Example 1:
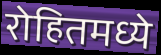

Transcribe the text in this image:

रोहितमध्ये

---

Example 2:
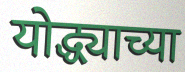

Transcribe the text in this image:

योद्ध्याच्या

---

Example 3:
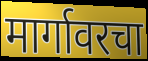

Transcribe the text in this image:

मार्गावरचा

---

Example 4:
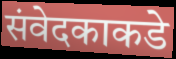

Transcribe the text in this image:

संवेदकाकडे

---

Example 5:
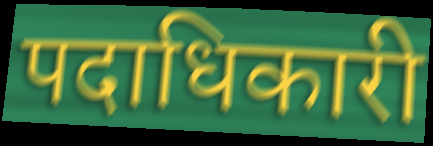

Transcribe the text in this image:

पदाधिकारी